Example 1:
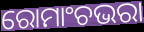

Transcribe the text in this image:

ରୋମାଂଚଭରା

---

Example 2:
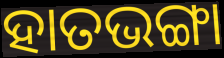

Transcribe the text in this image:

ହାତଭଙ୍ଗା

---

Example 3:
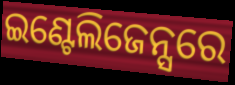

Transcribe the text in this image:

ଇଣ୍ଟେଲିଜେନ୍ସରେ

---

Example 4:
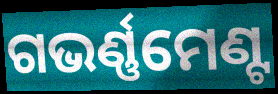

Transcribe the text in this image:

ଗଭର୍ଣ୍ଣମେଣ୍ଟ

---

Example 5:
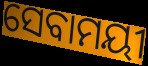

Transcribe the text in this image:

ସେବାମୟୀ